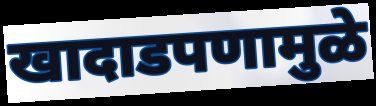
खादाडपणामुळे